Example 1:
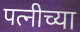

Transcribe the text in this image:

पत्नीच्या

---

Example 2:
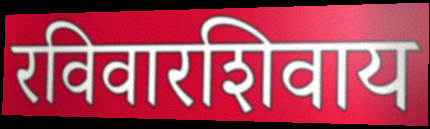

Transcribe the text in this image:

रविवारशिवाय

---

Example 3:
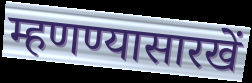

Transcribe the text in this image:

म्हणण्यासारखें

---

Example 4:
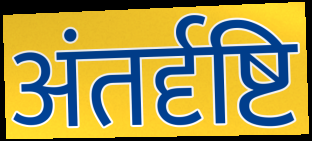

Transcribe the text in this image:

अंतर्दृष्टि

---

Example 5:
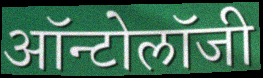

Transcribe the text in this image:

ऑन्टोलॉजी